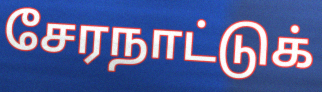
சேரநாட்டுக்